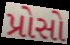
પ્રોસો